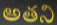
అతని